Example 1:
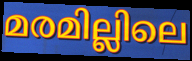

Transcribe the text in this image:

മരമില്ലിലെ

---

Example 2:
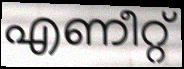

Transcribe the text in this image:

എണീറ്റ്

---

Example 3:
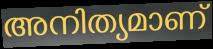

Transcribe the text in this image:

അനിത്യമാണ്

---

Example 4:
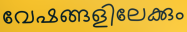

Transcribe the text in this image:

വേഷങ്ങളിലേക്കും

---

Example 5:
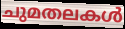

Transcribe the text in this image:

ചുമതലകൾ